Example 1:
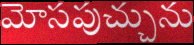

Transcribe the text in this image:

మోసపుచ్చును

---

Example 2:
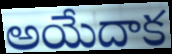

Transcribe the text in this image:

అయేదాక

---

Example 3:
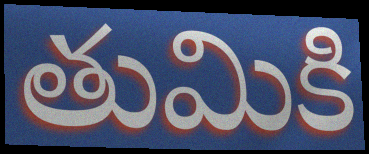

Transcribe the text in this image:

తుమికి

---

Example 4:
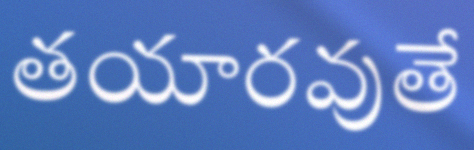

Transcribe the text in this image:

తయారవుతే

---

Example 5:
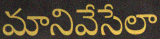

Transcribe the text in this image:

మానివేసేలా